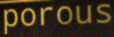
porous